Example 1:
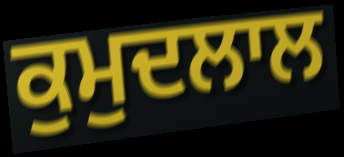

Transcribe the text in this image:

ਕੁਮੁਦਲਾਲ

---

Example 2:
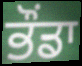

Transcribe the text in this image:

ਭੌਂਡਾ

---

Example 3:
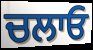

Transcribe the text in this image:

ਚਲਾਓ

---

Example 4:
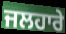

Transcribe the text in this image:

ਜਲਹਾਰੇ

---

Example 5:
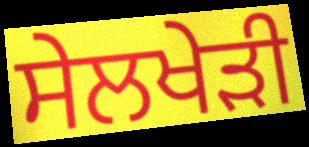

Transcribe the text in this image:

ਸੇਲਖੇੜੀ